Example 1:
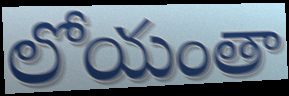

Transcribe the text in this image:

లోయంతా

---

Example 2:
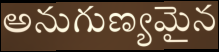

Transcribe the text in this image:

అనుగుణ్యమైన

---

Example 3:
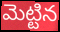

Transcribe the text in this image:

మెట్టిన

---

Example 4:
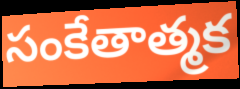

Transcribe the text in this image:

సంకేతాత్మక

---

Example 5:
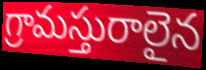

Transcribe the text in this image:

గ్రామస్తురాలైన